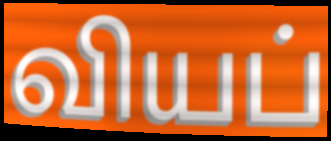
வியப்